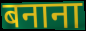
बनाना